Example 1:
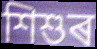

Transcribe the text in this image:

শিশুৰ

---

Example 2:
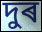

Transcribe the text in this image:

দুৰ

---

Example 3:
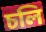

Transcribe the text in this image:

চলি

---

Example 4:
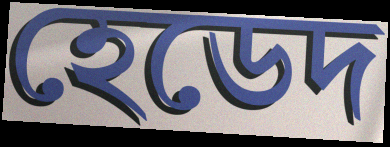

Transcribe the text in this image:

হেডেদ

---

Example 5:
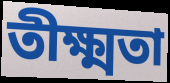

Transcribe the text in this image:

তীক্ষ্মতা